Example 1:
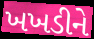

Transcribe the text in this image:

ખખડીને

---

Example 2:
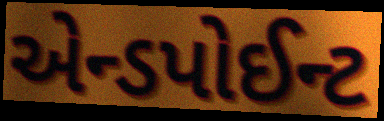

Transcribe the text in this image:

એન્ડપોઈન્ટ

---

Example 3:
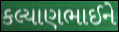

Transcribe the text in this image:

કલ્યાણભાઈને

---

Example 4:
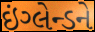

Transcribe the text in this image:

ઇંગ્લેન્ડને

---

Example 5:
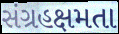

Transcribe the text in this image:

સંગ્રહક્ષમતા